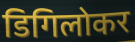
डिगिलोकर